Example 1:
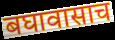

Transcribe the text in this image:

बघावासाच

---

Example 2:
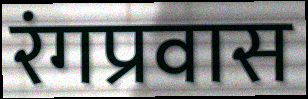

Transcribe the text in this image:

रंगप्रवास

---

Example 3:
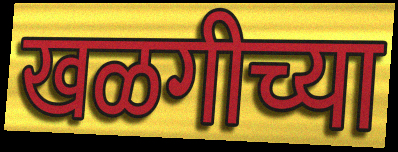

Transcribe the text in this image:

खळगीच्या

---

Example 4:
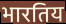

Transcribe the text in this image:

भारतिय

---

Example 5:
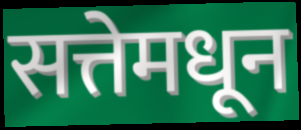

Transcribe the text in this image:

सत्तेमधून